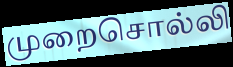
முறைசொல்லி